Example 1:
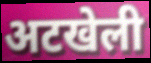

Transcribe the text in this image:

अटखेली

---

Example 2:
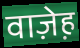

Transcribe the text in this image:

वाज़ेह़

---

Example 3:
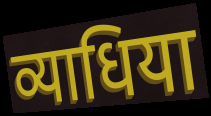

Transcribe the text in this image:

व्याधिया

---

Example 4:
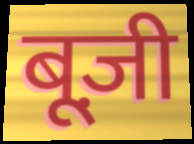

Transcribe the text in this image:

बूज़ी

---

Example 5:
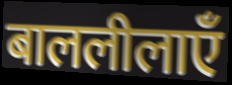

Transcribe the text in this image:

बाललीलाएँ